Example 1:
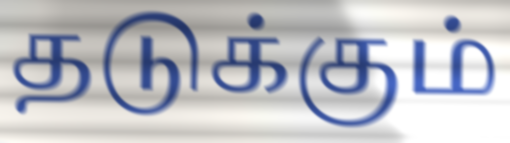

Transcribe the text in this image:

தடுக்கும்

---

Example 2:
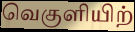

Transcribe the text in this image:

வெகுளியிற்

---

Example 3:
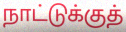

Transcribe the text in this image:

நாட்டுக்குத்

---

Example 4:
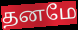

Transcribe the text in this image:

தனமே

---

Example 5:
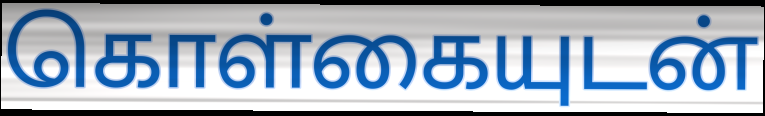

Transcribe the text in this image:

கொள்கையுடன்